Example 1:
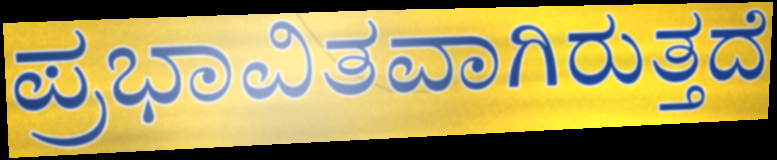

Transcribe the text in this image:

ಪ್ರಭಾವಿತವಾಗಿರುತ್ತದೆ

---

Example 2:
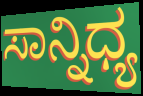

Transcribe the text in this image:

ಸಾನ್ನಿಧ್ಯ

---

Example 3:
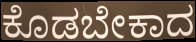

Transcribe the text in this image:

ಕೊಡಬೇಕಾದ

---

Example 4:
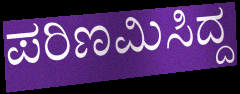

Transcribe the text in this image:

ಪರಿಣಮಿಸಿದ್ದ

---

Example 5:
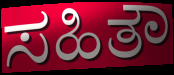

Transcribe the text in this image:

ಸಹಿತೌ